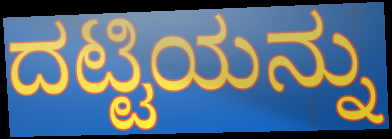
ದಟ್ಟಿಯನ್ನು